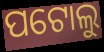
ପଟୋଲୁ